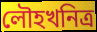
লৌহখনিত্র